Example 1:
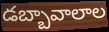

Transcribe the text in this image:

డబ్బావాలాల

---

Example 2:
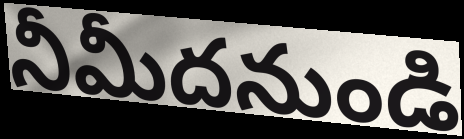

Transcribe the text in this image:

నీమీదనుండి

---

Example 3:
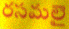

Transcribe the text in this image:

రసమలై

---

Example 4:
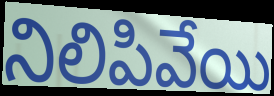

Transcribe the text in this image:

నిలిపివేయి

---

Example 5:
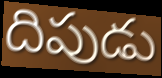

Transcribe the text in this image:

దిపుడు